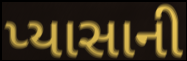
પ્યાસાની